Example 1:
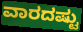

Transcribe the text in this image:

ವಾರದಷ್ಟು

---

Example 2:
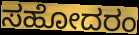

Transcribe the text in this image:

ಸಹೋದರಂ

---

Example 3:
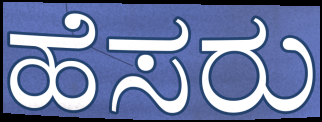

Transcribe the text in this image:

ಹೆಸರು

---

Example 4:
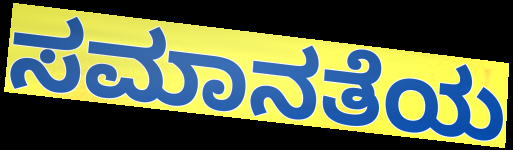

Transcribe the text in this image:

ಸಮಾನತೆಯ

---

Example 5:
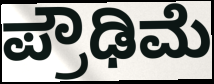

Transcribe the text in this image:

ಪ್ರೌಢಿಮೆ